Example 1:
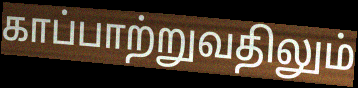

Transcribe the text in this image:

காப்பாற்றுவதிலும்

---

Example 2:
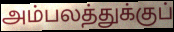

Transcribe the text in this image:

அம்பலத்துக்குப்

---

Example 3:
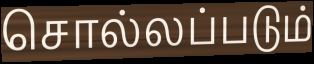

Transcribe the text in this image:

சொல்லப்படும்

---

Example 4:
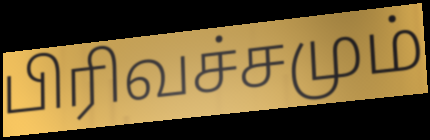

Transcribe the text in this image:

பிரிவச்சமும்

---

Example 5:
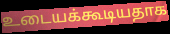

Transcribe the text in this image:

உடையக்கூடியதாக